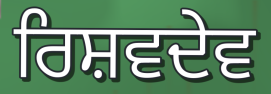
ਰਿਸ਼ਵਦੇਵ